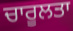
ਚਾਰੂਲਤਾ